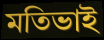
মতিভাই